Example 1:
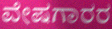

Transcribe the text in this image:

ವೇಷಗಾರರ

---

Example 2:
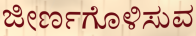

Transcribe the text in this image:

ಜೀರ್ಣಗೊಳಿಸುವ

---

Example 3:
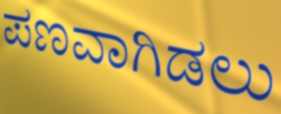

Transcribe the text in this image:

ಪಣವಾಗಿಡಲು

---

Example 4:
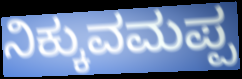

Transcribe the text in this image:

ನಿಕ್ಕುವಮಪ್ಪ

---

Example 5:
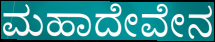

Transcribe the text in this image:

ಮಹಾದೇವೇನ